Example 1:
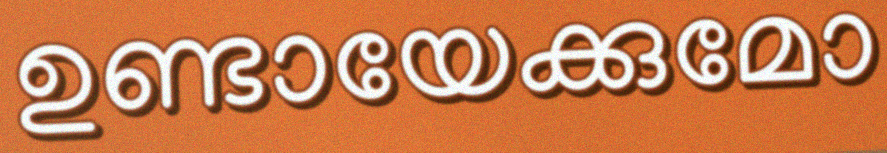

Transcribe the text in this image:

ഉണ്ടായേക്കുമോ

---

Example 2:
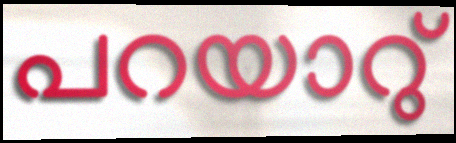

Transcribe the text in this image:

പറയാറു്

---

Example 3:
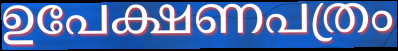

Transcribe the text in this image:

ഉപേക്ഷണപത്രം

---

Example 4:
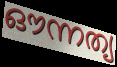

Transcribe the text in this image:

ഔന്നത്യ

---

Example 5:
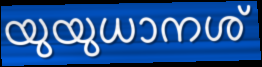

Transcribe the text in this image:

യുയുധാനശ്